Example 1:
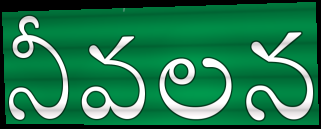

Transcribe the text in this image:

నీవలన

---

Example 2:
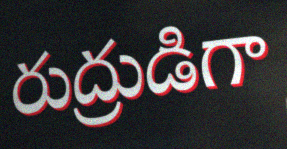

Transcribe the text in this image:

రుద్రుడిగా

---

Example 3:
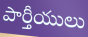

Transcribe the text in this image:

పార్తీయులు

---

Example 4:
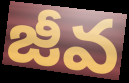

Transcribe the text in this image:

జీవ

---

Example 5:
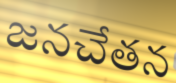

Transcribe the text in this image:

జనచేతన